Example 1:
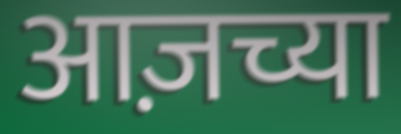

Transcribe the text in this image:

आज़च्या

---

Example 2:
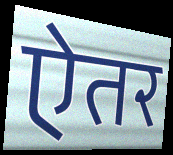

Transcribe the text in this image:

ऐतर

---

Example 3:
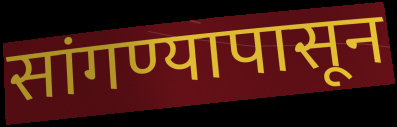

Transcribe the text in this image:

सांगण्यापासून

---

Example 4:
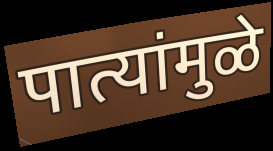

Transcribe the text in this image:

पात्यांमुळे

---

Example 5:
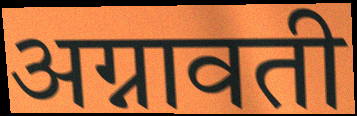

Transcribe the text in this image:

अग्नावती